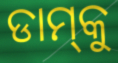
ଡାମ୍‍କୁ